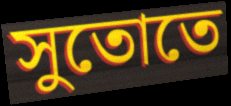
সুতোতে